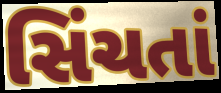
સિંચતાં